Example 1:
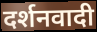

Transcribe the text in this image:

दर्शनवादी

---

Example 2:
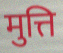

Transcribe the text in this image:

मुत्ति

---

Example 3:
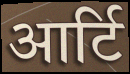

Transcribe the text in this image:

आर्टि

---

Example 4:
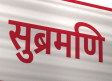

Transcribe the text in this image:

सुब्रमणि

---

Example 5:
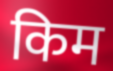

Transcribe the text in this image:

किम